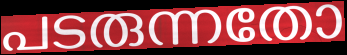
പടരുന്നതോ